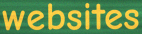
websites